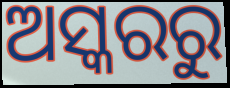
ଅସ୍କରରୁ